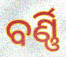
ବର୍ଣ୍ଣି